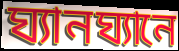
ঘ্যানঘ্যানে